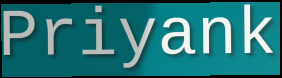
Priyank